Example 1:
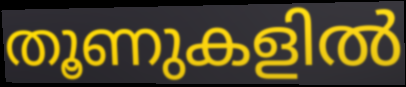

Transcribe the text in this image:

തൂണുകളിൽ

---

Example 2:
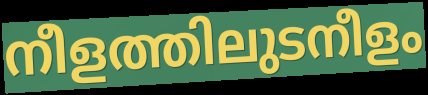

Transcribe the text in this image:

നീളത്തിലുടനീളം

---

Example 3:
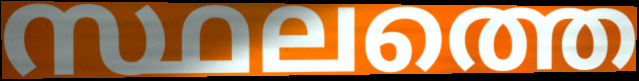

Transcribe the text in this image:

സ്ഥലത്തെ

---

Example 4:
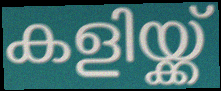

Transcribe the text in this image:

കളിയ്ക്ക്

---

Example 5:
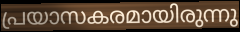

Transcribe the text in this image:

പ്രയാസകരമായിരുന്നു